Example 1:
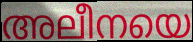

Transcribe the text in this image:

അലീനയെ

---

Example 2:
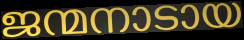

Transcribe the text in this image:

ജന്മനാടായ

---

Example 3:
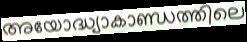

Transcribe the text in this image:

അയോദ്ധ്യാകാണ്ഡത്തിലെ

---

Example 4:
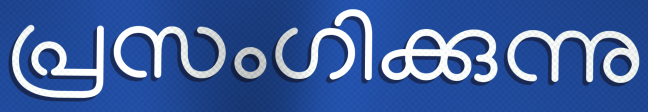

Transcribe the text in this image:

പ്രസംഗിക്കുന്നു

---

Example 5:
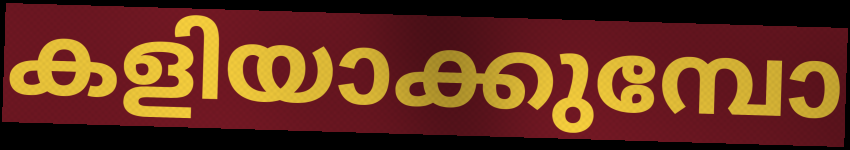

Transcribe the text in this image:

കളിയാക്കുമ്പോ